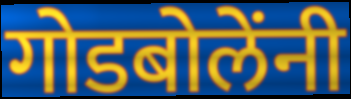
गोडबोलेंनी